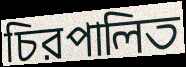
চিরপালিত